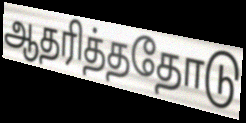
ஆதரித்ததோடு